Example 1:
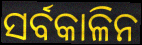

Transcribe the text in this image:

ସର୍ବକାଳିନ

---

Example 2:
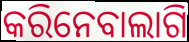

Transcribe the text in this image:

କରିନେବାଲାଗି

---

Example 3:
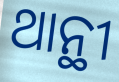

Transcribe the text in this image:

ଥାନ୍ଥୀ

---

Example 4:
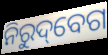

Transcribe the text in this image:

ନିରୁଦ୍‌ବେଗ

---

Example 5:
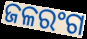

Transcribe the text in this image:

ଜଳରଂଗ